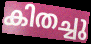
കിതച്ചു